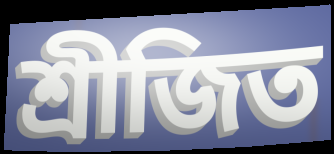
শ্রীজিত